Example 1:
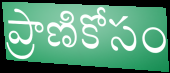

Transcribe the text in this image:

ప్రాణికోసం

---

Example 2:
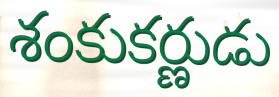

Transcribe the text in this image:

శంకుకర్ణుడు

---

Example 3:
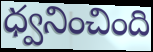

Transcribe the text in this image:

ధ్వనించింది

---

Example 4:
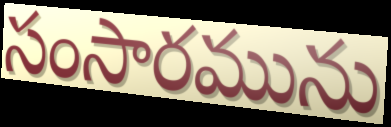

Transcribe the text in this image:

సంసారమును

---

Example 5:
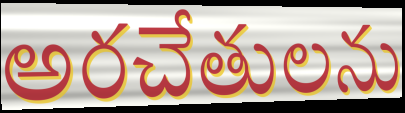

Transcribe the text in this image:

అరచేతులను